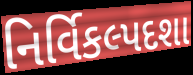
નિર્વિકલ્પદશા